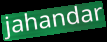
jahandar